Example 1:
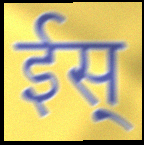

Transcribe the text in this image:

ईस्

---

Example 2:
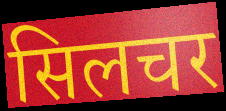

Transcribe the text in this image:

सिलचर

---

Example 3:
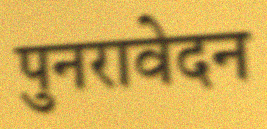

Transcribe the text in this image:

पुनरावेदन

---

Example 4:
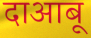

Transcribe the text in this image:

दाआबू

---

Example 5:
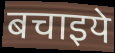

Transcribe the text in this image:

बचाइये